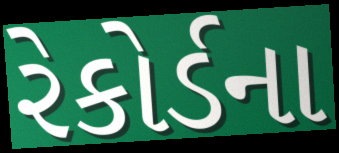
રેકોર્ડના